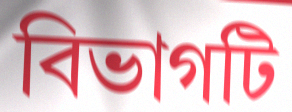
বিভাগটি